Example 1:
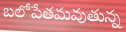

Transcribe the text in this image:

బలోపేతమవుతున్న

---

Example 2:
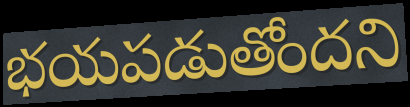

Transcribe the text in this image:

భయపడుతోందని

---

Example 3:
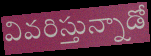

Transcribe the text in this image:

వివరిస్తున్నాడో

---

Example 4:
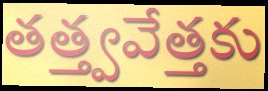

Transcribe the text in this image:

తత్త్వవేత్తకు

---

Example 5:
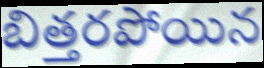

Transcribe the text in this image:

బిత్తరపోయిన